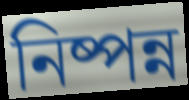
নিষ্পন্ন